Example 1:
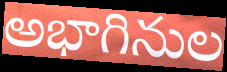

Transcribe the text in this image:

అభాగినుల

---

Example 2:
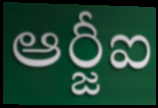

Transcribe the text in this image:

ఆర్జీఐ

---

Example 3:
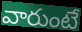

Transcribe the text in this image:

వారుంటే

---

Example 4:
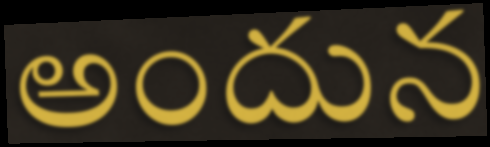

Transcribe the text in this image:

అందున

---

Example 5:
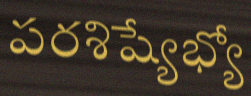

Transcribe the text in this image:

పరశిష్యేభ్యో